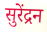
सुरेंद्रन